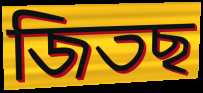
জিতছ